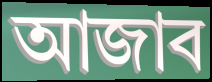
আজাব